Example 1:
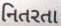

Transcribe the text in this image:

નિતરતા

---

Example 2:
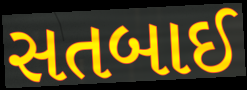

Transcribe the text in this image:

સતબાઈ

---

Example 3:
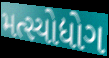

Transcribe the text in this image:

મત્સ્યોદ્યોગ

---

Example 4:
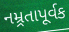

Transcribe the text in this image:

નમ્ર્રતાપૂર્વક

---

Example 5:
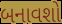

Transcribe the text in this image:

બનાવશો